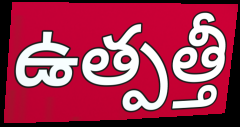
ఉత్పత్తీ